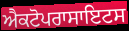
ਐਕਟੋਪਰਾਸਾਇਟਸ